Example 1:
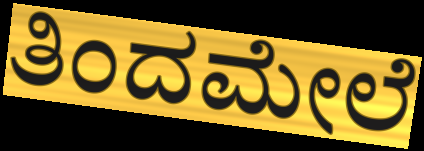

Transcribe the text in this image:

ತಿಂದಮೇಲೆ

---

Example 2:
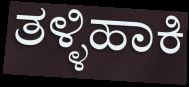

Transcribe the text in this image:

ತಳ್ಳಿಹಾಕಿ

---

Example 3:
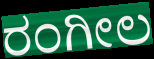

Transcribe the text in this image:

ರಂಗೀಲ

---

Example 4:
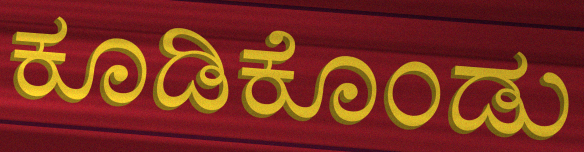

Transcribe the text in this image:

ಕೂಡಿಕೊಂಡು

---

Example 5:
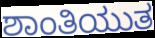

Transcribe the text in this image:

ಶಾಂತಿಯುತ